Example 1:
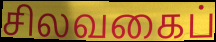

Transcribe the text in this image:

சிலவகைப்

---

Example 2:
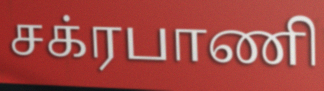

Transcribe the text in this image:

சக்ரபாணி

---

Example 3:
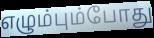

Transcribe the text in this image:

எழும்பும்போது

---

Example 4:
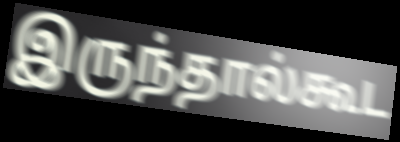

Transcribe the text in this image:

இருந்தால்கூட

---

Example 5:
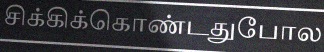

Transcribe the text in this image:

சிக்கிக்கொண்டதுபோல